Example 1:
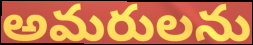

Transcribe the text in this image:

అమరులను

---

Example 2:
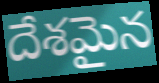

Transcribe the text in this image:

దేశమైన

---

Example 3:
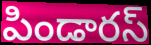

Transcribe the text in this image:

పిండారస్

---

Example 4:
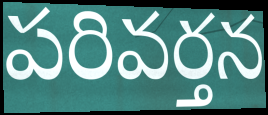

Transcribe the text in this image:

పరివర్తన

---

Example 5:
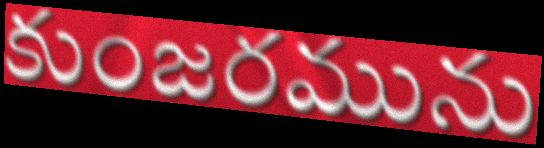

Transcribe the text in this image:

కుంజరమును